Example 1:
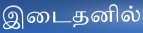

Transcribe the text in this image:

இடைதனில்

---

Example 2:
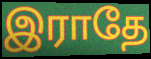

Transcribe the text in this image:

இராதே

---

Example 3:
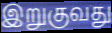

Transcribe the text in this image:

இறுகுவது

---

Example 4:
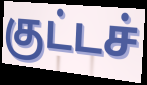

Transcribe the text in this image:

குட்டச்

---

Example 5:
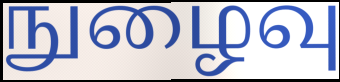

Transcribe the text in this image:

நுழைவு